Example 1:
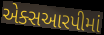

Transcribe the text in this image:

એક્સઆરપીમાં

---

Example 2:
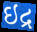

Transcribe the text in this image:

ઇદ્ર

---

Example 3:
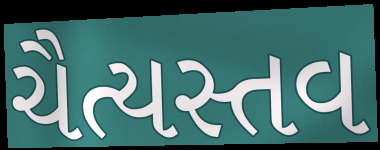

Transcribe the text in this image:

ચૈત્યસ્તવ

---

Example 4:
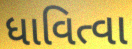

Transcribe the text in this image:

ધાવિત્વા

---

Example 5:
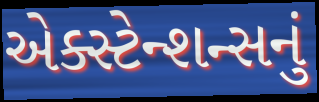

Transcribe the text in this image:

એક્સ્ટેન્શન્સનું